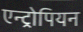
एन्ट्रोपियन